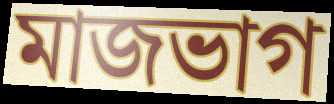
মাজভাগ